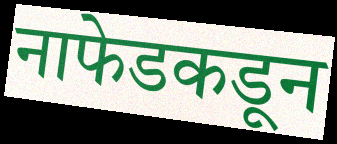
नाफेडकडून